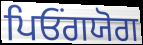
ਪਿਓਂਗਯੋਗ